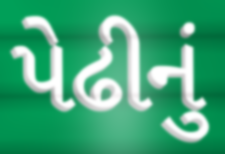
પેઢીનું